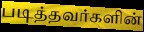
படித்தவர்களின்